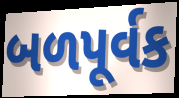
બળપૂર્વક